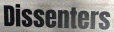
Dissenters